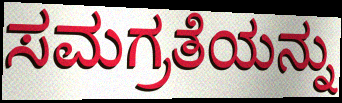
ಸಮಗ್ರತೆಯನ್ನು